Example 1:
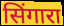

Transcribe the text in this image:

सिंगारा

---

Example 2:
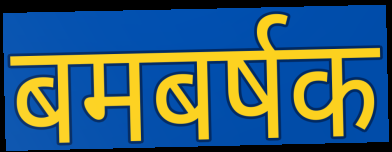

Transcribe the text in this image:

बमबर्षक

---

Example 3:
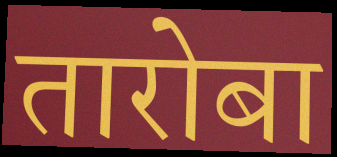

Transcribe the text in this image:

तारोबा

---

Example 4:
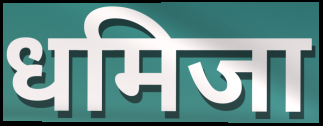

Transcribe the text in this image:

धमिजा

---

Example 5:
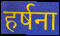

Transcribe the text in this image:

हर्षना